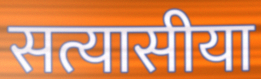
सत्यासीया